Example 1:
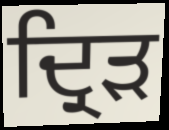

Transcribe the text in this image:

ਦ੍ਰਿੜ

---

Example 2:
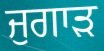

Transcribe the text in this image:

ਜੁਗਾੜ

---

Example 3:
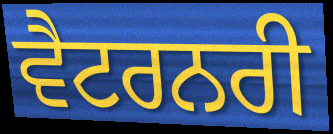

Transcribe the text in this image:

ਵੈਟਰਨਰੀ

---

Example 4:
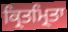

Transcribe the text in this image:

ਕ੍ਰਿਤਮ੍ਰਿਤਾ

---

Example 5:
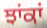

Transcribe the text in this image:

ਝਾਂਕਾਂ